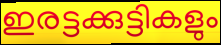
ഇരട്ടക്കുട്ടികളും